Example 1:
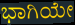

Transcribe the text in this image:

ಭಾಗಿಯೇ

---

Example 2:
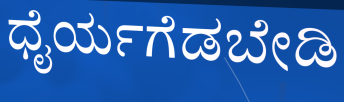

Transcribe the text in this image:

ಧೈರ್ಯಗೆಡಬೇಡಿ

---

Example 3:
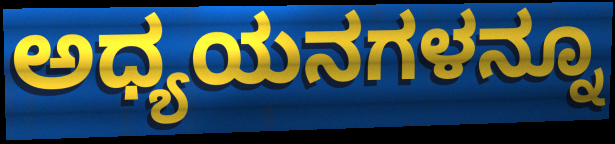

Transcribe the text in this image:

ಅಧ್ಯಯನಗಳನ್ನೂ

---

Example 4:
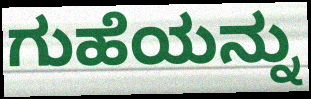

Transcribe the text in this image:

ಗುಹೆಯನ್ನು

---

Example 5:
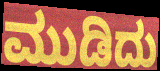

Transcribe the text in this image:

ಮುಡಿದು